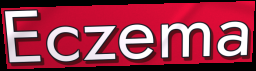
Eczema